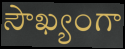
సౌఖ్యంగా